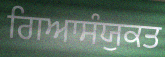
ਗਿਆਸੰਯੁਕਤ